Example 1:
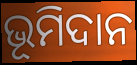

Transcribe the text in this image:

ଭୂମିଦାନ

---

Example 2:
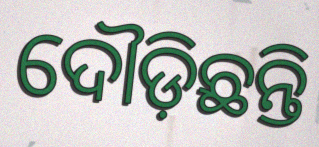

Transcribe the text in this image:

ଦୌଡ଼ିଛନ୍ତି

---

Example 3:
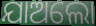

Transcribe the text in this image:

ଯାଅଲୋ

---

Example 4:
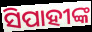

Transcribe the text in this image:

ସିପାହୀଙ୍କ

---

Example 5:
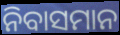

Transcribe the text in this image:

ନିବାସମାନ